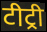
टीट्री